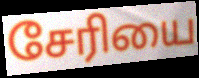
சேரியை